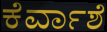
ಕೆರ್ವಾಶೆ